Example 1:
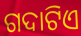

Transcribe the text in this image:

ଗଦାଟିଏ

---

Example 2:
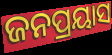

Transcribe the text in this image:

ଜନପ୍ରୟାସ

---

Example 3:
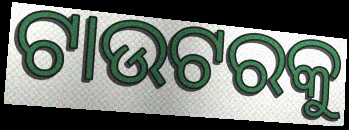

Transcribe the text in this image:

ଟାଉଟରକୁ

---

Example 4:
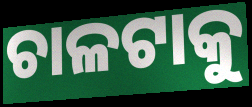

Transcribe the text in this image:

ଚାଳଟାକୁ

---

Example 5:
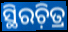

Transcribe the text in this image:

ସ୍ଥିରଚ଼ିତ୍ର